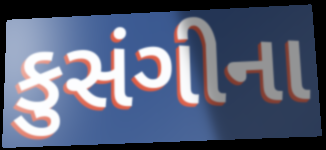
કુસંગીના